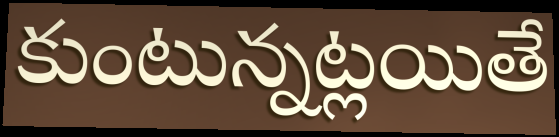
కుంటున్నట్లయితే